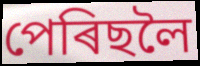
পেৰিছলৈ